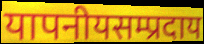
यापनीयसम्प्रदाय